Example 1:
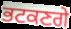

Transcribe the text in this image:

ਭਟਕਣਗੇ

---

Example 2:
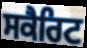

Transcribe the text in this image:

ਸਕੈਰਿਟ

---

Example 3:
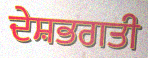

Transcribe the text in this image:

ਦੇਸ਼ਭਗਤੀ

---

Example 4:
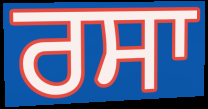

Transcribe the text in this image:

ਰਸਾ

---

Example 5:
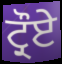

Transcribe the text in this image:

ਟ੍ਰੌਏ